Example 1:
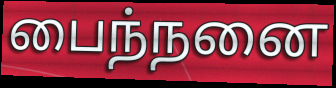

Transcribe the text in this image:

பைந்நனை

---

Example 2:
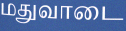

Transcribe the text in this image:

மதுவாடை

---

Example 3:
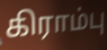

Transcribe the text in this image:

கிராம்பு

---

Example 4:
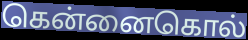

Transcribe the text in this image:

கென்னைகொல்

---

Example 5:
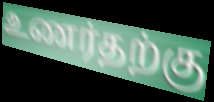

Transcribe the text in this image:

உணர்தற்கு